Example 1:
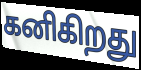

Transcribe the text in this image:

கனிகிறது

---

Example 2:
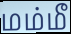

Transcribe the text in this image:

மம்மீ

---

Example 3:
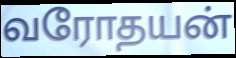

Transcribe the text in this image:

வரோதயன்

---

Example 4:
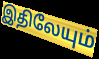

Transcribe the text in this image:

இதிலேயும்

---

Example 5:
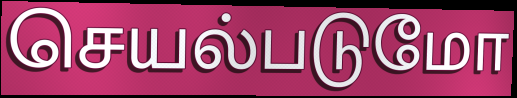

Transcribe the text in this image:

செயல்படுமோ